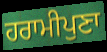
ਹਰਾਮੀਪੁਣਾ